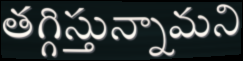
తగ్గిస్తున్నామని